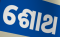
ଶୋଥ